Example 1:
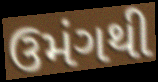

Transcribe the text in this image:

ઉમંગથી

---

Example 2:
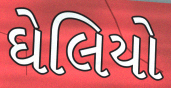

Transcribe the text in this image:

ઘેલિયો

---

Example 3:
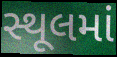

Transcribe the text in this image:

સ્થૂલમાં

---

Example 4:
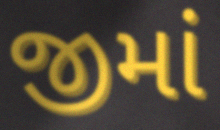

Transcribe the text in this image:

જીમાં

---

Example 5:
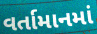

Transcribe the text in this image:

વર્તામાનમાં